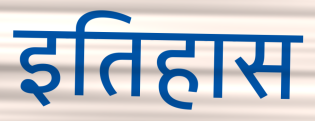
इतिहास